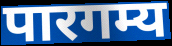
पारगम्य